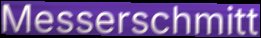
Messerschmitt